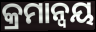
କ୍ରମାନ୍ୱୟ